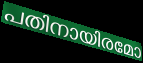
പതിനായിരമോ